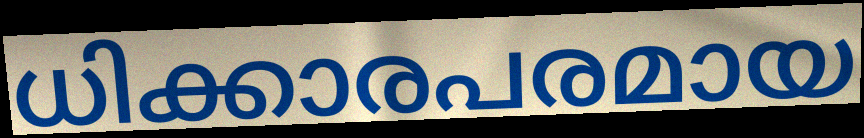
ധിക്കാരപരമായ